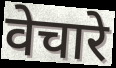
वेचारे